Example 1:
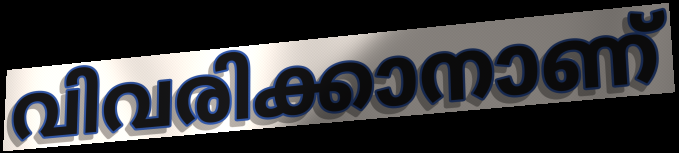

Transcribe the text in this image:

വിവരിക്കാനാണ്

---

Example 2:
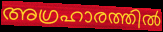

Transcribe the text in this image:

അഗ്രഹാരത്തിൽ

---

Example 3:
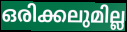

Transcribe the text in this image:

ഒരിക്കലുമില്ല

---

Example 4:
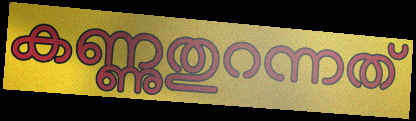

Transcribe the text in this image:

കണ്ണുതുറന്നത്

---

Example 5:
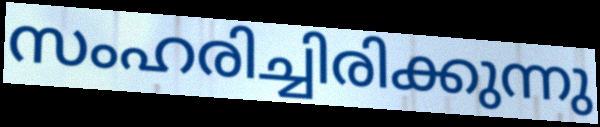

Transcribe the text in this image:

സംഹരിച്ചിരിക്കുന്നു